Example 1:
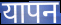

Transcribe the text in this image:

यापन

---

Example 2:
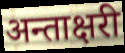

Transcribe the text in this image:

अन्ताक्षरी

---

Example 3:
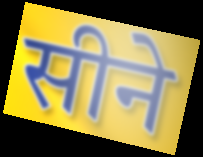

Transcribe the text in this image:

सीने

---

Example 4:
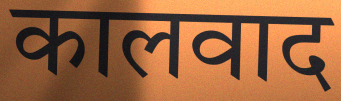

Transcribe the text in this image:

कालवाद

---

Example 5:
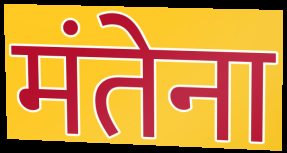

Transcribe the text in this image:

मंतेना